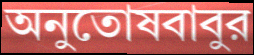
অনুতোষবাবুর